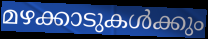
മഴക്കാടുകൾക്കും